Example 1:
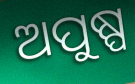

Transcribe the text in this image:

ଅପୁଷ୍ପ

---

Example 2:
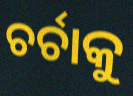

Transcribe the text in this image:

ଚର୍ଚାକୁ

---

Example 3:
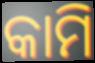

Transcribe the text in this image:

କାମି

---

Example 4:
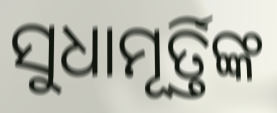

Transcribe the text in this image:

ସୁଧାମୂର୍ତ୍ତିଙ୍କ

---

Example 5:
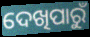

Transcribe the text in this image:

ଦେଖିପାରୁଁ